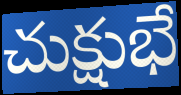
చుక్షుభే